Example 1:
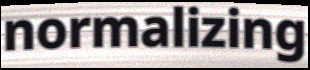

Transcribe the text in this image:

normalizing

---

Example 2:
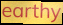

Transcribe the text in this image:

earthy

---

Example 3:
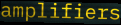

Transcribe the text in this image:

amplifiers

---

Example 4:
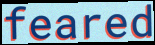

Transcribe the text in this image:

feared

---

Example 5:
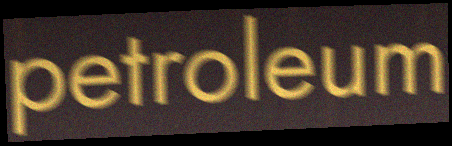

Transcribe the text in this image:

petroleum